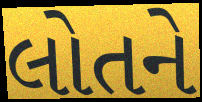
લોતને